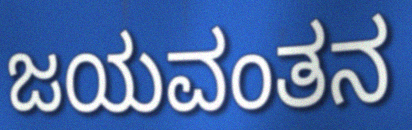
ಜಯವಂತನ